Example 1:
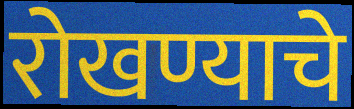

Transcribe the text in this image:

रोखण्याचे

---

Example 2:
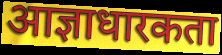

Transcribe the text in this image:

आज्ञाधारकता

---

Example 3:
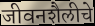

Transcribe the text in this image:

जीवनशैलीचे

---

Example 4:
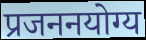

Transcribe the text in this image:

प्रजननयोग्य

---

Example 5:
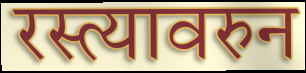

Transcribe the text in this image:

रस्त्यावरुन